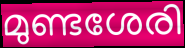
മുണ്ടശേരി